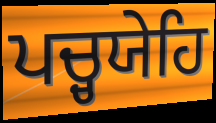
ਪਚ੍ਚਯੇਹਿ